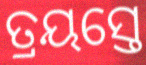
ତ୍ରୟସ୍ତେ